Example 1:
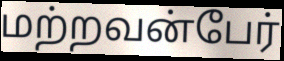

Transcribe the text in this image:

மற்றவன்பேர்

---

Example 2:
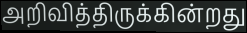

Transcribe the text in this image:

அறிவித்திருக்கின்றது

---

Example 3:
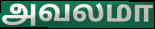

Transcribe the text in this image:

அவலமா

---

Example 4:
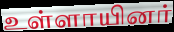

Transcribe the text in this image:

உள்ளாயினர்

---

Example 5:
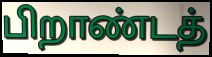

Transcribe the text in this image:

பிறாண்டத்